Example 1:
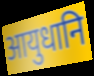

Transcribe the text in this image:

आयुधानि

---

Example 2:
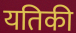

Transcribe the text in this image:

यतिकी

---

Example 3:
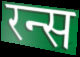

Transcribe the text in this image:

रन्स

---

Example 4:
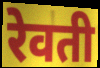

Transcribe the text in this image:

रेवती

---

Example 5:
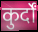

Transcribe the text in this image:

कुर्दों